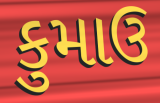
કુમાઉ